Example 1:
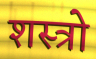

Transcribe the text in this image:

शस्त्रो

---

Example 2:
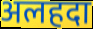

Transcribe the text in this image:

अलहदा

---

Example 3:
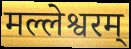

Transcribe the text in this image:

मल्लेश्वरम्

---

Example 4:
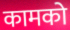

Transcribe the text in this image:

कामको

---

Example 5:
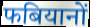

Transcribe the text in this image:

फबियानों